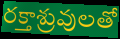
రక్తాశ్రువులతో